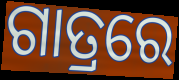
ଗାତ୍ରରେ